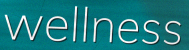
wellness